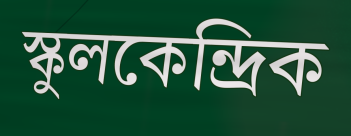
স্কুলকেন্দ্রিক